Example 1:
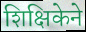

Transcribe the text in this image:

शिक्षिकेने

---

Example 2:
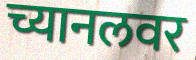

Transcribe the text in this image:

च्यानलवर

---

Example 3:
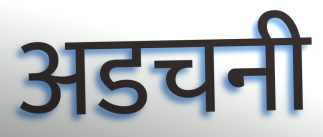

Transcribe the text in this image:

अडचनी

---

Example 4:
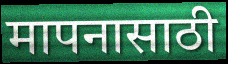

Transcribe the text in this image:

मापनासाठी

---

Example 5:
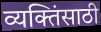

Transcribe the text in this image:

व्यक्तिंसाठी